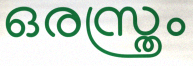
ഒരസ്ത്രം